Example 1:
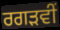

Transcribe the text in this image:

ਰਗੜਵੀਂ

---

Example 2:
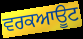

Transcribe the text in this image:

ਵਰਕਆਊਟ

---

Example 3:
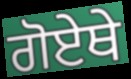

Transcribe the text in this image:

ਗੋਏਥੇ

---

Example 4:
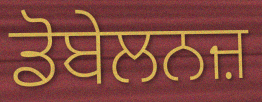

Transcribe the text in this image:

ਡੋਬੇਲਨਜ਼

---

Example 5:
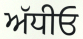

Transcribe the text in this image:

ਅੱਧੀਓ